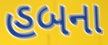
હબના